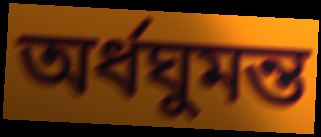
অর্ধঘুমন্ত